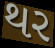
થર